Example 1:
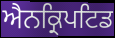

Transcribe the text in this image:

ਐਨਕ੍ਰਿਪਟਿਡ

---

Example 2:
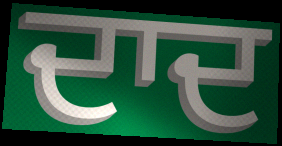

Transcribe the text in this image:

ਦਾਦ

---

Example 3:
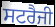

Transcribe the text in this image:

ਸਟਰੈਜੀ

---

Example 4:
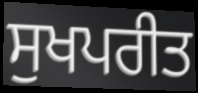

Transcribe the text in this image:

ਸੁਖਪਰੀਤ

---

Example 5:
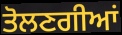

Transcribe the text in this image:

ਤੋਲਣਗੀਆਂ